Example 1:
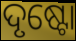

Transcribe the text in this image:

ଦୃଷ୍ଟୋ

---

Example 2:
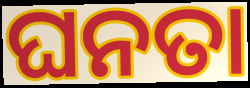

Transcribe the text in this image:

ଘନତା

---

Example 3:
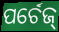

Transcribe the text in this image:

ପର୍ଚେଜ୍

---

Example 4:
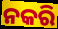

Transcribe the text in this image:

ନକରି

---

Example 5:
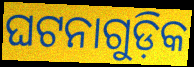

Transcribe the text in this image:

ଘଟନାଗୁଡ଼ିକ